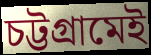
চট্টগ্রামেই